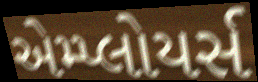
એમ્પ્લોયર્સ